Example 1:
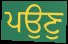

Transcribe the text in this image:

ਪਉਣੁ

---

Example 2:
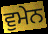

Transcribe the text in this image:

ਵੁਮੇਨ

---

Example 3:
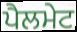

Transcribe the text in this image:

ਪੈਲਮੇਟ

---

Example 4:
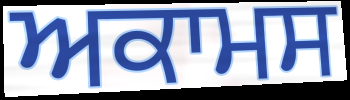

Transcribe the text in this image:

ਅਕਾਮਸ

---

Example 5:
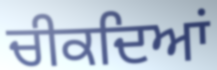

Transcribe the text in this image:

ਚੀਕਦਿਆਂ